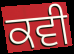
ਕਵੀ